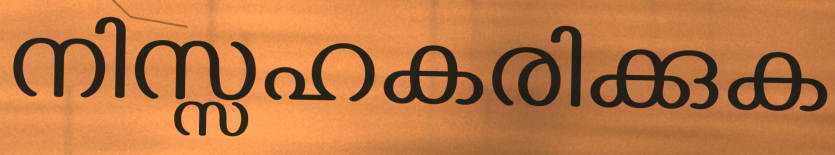
നിസ്സഹകരിക്കുക